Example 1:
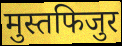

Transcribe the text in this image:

मुस्तफिजुर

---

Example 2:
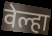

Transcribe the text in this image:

वेल्हा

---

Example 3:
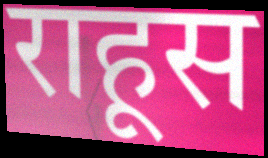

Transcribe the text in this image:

राहूस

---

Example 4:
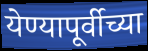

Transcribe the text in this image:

येण्यापूर्वीच्या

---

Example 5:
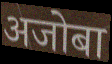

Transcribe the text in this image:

अजोबा